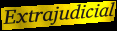
Extrajudicial